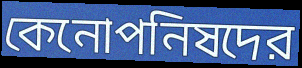
কেনোপনিষদের